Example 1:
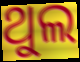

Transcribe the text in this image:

ଥୁଲ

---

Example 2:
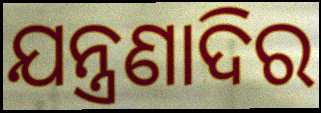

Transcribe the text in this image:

ଯନ୍ତ୍ରଣାଦିର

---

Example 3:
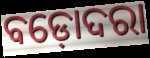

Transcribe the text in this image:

ବଡ଼ୋଦରା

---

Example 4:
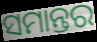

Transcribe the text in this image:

ସମାନ୍ତର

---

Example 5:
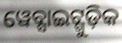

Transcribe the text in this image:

ୱେବ୍ସାଇଟ୍ଗୁଡ଼ିକ